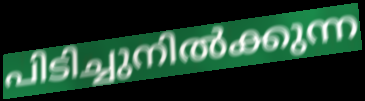
പിടിച്ചുനിൽക്കുന്ന